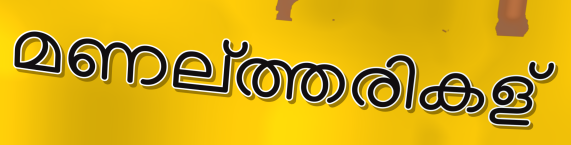
മണല്ത്തരികള്